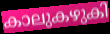
കാലുകഴുകി